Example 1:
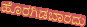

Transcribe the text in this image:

ಹೊರಗಿಡಬಾರದು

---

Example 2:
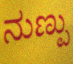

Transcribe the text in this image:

ನುಣ್ಪು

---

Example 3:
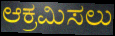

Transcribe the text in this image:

ಆಕ್ರಮಿಸಲು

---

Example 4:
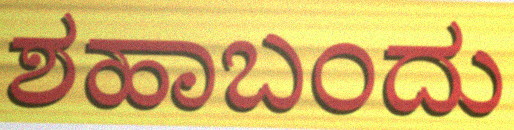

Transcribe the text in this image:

ಶಹಾಬಂದು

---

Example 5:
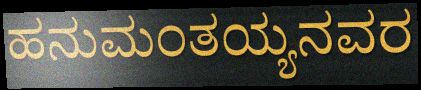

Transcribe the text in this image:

ಹನುಮಂತಯ್ಯನವರ